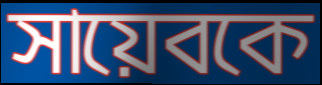
সায়েবকে